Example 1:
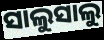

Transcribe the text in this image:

ସାଲୁସାଲୁ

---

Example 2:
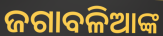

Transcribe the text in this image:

ଜଗାବଳିଆଙ୍କ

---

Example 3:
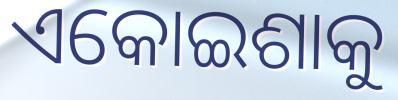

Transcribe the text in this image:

ଏକୋଇଶାକୁ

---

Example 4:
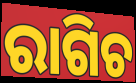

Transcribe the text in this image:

ରାଗିଚ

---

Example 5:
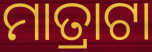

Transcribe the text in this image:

ମାତ୍ରାଟା